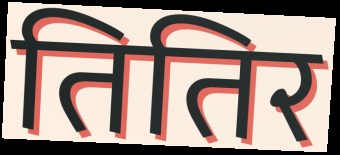
तितिर